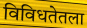
विविधतेतला